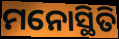
ମନୋସ୍ଥିତି